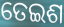
ତେଇଶ